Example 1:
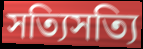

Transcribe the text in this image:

সত্যিসত্যি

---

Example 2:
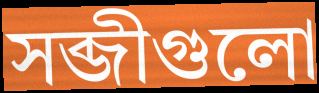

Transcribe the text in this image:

সব্জীগুলো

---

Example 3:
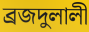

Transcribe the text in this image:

ব্রজদুলালী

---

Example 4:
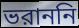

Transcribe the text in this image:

ভরাননি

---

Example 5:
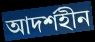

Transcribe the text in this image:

আদর্শহীন